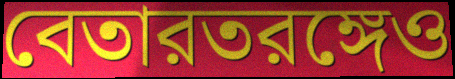
বেতারতরঙ্গেও